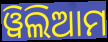
ୱିଲିଆମ